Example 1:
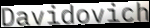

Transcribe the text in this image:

Davidovich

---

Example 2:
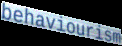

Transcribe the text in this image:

behaviourism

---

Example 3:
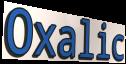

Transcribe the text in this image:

Oxalic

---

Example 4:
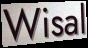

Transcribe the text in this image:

Wisal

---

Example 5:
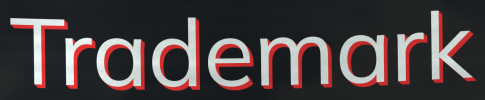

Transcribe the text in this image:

Trademark